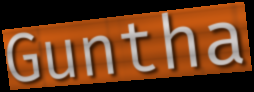
Guntha